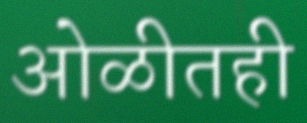
ओळीतही